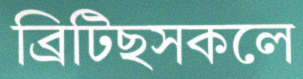
ব্ৰিটিছসকলে